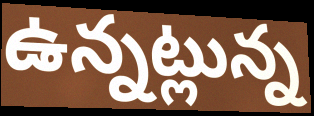
ఉన్నట్లున్న